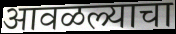
आवळल्याचा